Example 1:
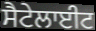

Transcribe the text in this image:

ਸੈਟੇਲਾਈਟ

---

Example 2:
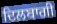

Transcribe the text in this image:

ਦਿਲਬਾਗੀ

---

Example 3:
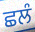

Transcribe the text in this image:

ਛਲੰ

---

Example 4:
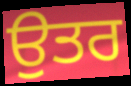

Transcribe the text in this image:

ਉਤਰ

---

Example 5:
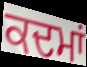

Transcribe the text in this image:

ਕਦਮਾਂ